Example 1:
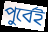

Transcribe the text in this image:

পুর্বেই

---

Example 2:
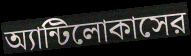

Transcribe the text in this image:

অ্যান্টিলোকাসের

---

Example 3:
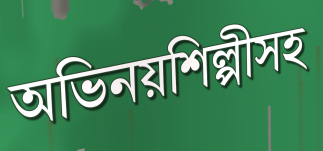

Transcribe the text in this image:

অভিনয়শিল্পীসহ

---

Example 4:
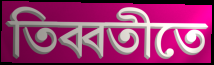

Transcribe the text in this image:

তিব্বতীতে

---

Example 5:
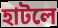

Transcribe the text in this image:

হাটলে